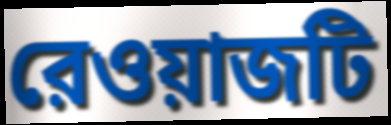
রেওয়াজটি